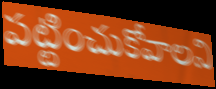
పట్టించుకోవాలని